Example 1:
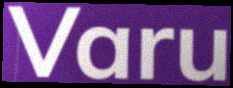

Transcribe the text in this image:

Varu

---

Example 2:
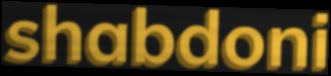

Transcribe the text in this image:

shabdoni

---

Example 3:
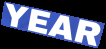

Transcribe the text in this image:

YEAR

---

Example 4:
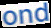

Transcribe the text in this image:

ond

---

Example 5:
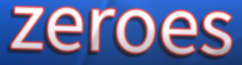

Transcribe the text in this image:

zeroes